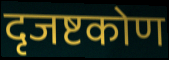
दृजष्टकोण